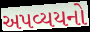
અપવ્યયનો